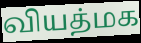
வியத்மக